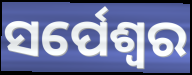
ସର୍ପେଶ୍ଵର